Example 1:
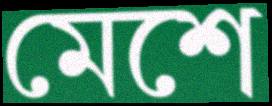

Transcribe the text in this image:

মেশে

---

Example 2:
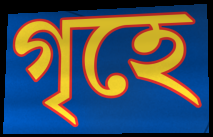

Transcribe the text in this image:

গৃহে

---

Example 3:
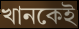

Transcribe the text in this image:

খানকেই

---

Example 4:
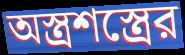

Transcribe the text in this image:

অস্ত্রশস্ত্রের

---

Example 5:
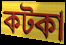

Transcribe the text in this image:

কটকা